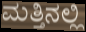
ಮತ್ತಿನಲ್ಲಿ